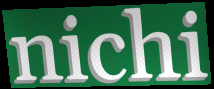
nichi